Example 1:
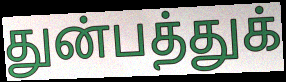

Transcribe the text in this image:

துன்பத்துக்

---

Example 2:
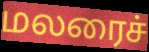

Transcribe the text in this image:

மலரைச்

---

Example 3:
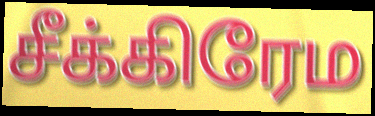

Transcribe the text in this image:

சீக்கிரேம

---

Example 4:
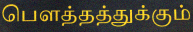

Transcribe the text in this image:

பௌத்தத்துக்கும்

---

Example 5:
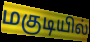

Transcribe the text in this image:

மகுடியில்